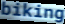
biking